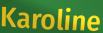
Karoline